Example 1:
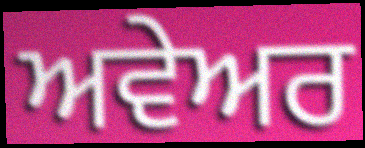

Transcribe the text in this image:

ਅਵੇਅਰ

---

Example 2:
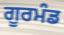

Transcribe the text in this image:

ਗੂਰਮੰਡ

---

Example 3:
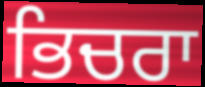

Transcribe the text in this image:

ਭਿਚਰਾ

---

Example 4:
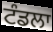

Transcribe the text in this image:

ਟੰਡਲਾ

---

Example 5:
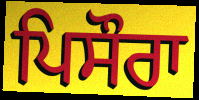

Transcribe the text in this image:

ਪਿਸੌਰਾ